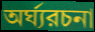
অর্ঘ্যরচনা